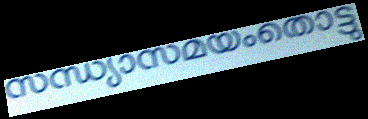
സന്ധ്യാസമയംതൊട്ടു